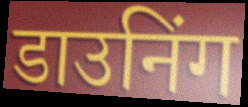
डाउनिंग